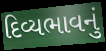
દિવ્યભાવનું